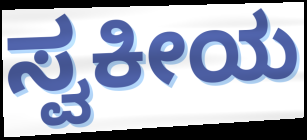
ಸ್ವಕೀಯ